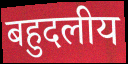
बहुदलीय